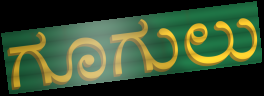
ಗೂಗುಲು